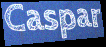
Caspar